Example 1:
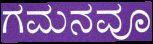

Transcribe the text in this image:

ಗಮನವೂ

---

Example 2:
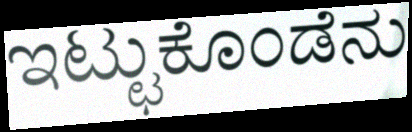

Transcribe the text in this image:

ಇಟ್ಟುಕೊಂಡೆನು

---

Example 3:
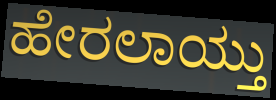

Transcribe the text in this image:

ಹೇರಲಾಯ್ತು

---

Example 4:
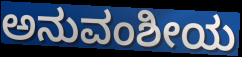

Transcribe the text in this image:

ಅನುವಂಶೀಯ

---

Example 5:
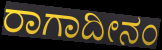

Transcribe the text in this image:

ರಾಗಾದೀನಂ